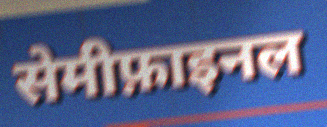
सेमीफ़ाइनल